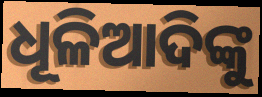
ଧୂଳିଆଦିଙ୍କୁ